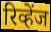
रिव्हेंज